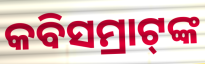
କବିସମ୍ରାଟ୍‌ଙ୍କ